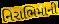
નિરાભિમાની